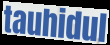
tauhidul